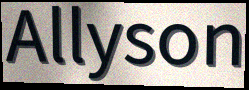
Allyson